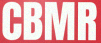
CBMR